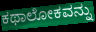
ಕಥಾಲೋಕವನ್ನು